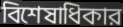
বিশেষাধিকার